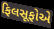
ફિલસૂફોએ